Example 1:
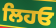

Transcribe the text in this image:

ਲਿਹਓ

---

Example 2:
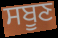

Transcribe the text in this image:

ਸਬੂਣ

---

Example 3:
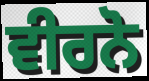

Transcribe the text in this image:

ਵੀਰਨੋ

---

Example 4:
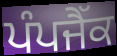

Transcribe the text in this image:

ਪੰਪਜੈੱਕ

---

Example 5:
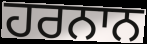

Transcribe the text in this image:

ਹਰਨਾਨ